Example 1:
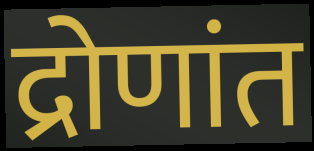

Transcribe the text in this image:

द्रोणांत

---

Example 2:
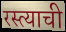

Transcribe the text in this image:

रस्त्याची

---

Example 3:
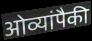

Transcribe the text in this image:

ओव्यांपैकी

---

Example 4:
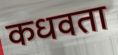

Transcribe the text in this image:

कधवता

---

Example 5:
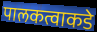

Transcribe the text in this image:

पालकत्वाकडे